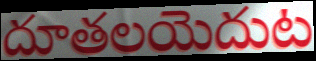
దూతలయెదుట